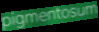
pigmentosum